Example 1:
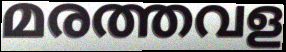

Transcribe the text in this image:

മരത്തവള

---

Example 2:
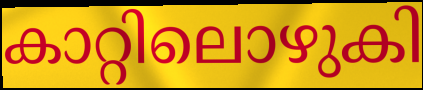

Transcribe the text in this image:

കാറ്റിലൊഴുകി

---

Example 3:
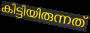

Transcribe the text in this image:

കിട്ടിയിരുന്നത്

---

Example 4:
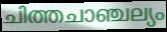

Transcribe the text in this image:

ചിത്തചാഞ്ചല്യം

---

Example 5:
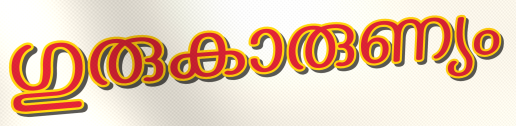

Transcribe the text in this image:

ഗുരുകാരുണ്യം